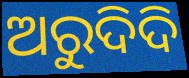
ଅରୁଦିଦି